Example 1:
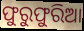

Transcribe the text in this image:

ଫୁରୁଫୁରିଆ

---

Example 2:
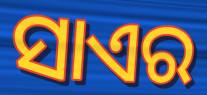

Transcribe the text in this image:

ସାଏର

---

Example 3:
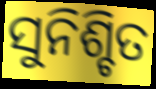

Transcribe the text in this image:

ସୁନିଶ୍ଚିତ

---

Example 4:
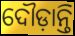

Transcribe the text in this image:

ଦୌଡ଼ାନ୍ତି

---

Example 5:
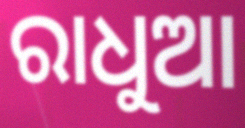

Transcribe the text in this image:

ରାଧୁଆ